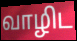
வாழிட